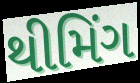
થીમિંગ